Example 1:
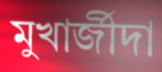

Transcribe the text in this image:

মুখার্জীদা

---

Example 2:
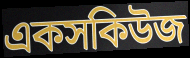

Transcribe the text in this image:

একসকিউজ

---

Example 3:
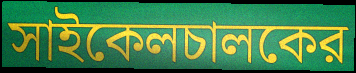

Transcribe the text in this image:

সাইকেলচালকের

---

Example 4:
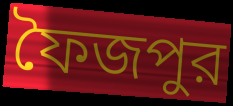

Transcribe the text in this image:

ফৈজপুর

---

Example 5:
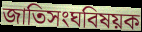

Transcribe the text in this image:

জাতিসংঘবিষয়ক